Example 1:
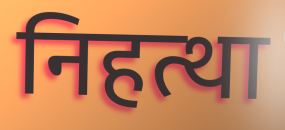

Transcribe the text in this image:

निहत्था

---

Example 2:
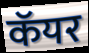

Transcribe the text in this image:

कॅयर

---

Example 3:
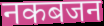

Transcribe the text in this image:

नकबजन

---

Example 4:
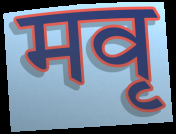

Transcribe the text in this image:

मवृ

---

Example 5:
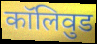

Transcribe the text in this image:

कॉलिवुड